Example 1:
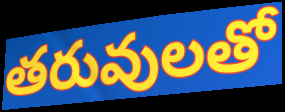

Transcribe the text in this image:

తరువులతో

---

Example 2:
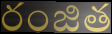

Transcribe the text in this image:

రంజిత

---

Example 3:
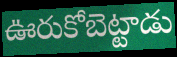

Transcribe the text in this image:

ఊరుకోబెట్టాడు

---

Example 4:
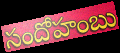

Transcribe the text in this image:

సందోహంబు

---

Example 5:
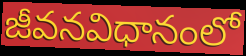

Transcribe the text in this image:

జీవనవిధానంలో